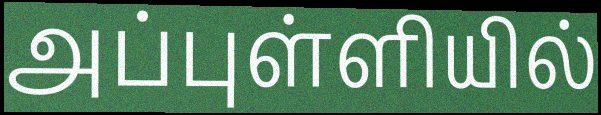
அப்புள்ளியில்